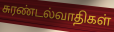
சுரண்டல்வாதிகள்